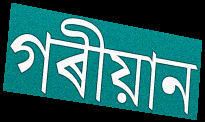
গৰীয়ান